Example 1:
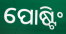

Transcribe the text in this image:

ପୋଷ୍ଟିଂ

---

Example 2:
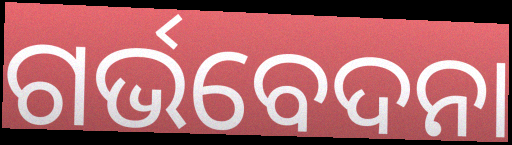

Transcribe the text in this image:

ଗର୍ଭବେଦନା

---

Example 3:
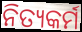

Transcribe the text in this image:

ନିତ୍ଯକର୍ମ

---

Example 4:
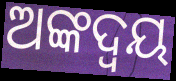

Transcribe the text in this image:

ଅଙ୍କଦ୍ବୟ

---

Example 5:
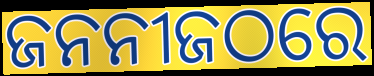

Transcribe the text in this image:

ଜନନୀଜଠରେ